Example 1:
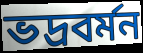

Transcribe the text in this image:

ভদ্রবর্মন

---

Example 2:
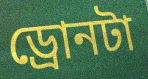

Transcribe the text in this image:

ড্রোনটা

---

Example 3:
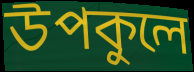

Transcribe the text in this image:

উপকুলে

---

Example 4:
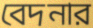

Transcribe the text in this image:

বেদনার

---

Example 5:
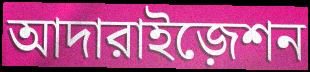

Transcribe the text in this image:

আদারাইজ়েশন